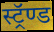
स्ट्रॅण्ड